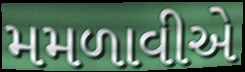
મમળાવીએ